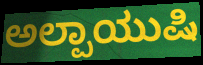
ಅಲ್ಪಾಯುಷಿ